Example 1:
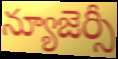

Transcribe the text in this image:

న్యూజెర్సీ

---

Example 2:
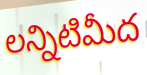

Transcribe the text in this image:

లన్నిటిమీద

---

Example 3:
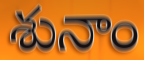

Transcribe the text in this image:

శునాం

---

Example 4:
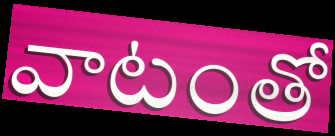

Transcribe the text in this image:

వాటంతో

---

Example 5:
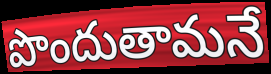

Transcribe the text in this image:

పొందుతామనే